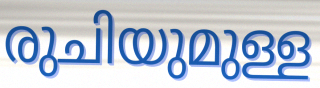
രുചിയുമുള്ള